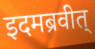
इदमब्रवीत्